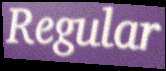
Regular